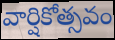
వార్షికోత్సవం